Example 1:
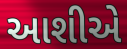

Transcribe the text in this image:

આશીએ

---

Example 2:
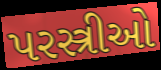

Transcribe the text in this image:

પરસ્ત્રીઓ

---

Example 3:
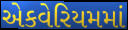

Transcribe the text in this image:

એકવેરિયમમાં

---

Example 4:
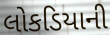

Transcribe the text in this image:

લોકડિયાની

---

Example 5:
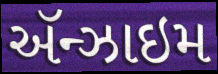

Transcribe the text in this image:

ઍન્ઝાઇમ